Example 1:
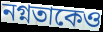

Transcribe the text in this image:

নগ্নতাকেও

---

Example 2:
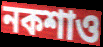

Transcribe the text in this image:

নকশাও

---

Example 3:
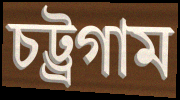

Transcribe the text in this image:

চট্ট্রগাম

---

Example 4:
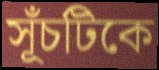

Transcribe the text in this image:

সূঁচটিকে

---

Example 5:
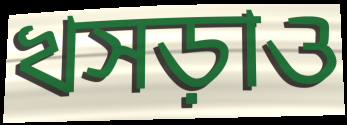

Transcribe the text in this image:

খসড়াও